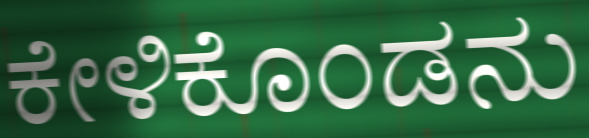
ಕೇಳಿಕೊಂಡನು